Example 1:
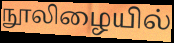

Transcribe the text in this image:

நூலிழையில்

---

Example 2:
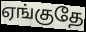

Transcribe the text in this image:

ஏங்குதே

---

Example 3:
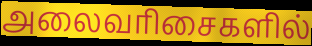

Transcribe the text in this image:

அலைவரிசைகளில்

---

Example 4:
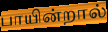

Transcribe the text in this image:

பாயின்றால்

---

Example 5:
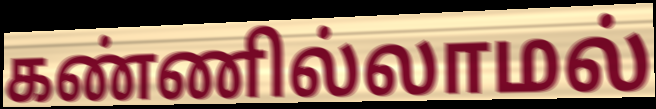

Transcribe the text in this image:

கண்ணில்லாமல்